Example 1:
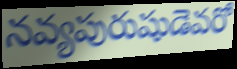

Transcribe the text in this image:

నవ్యపురుషుడెవరో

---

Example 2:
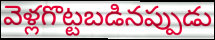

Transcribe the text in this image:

వెళ్లగొట్టబడినప్పుడు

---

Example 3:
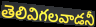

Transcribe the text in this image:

తెలివిగలవాడనీ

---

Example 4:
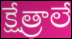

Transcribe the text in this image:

క్షేత్రాలే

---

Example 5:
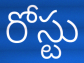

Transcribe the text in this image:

రోస్టు